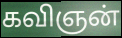
கவிஞன்